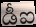
డీఐ